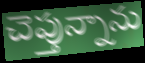
చెప్తున్నాను